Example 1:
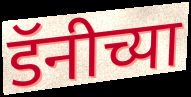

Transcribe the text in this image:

डॅनीच्या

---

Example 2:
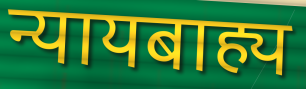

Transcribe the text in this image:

न्यायबाह्य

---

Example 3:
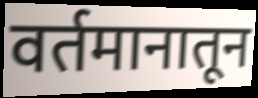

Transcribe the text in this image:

वर्तमानातून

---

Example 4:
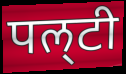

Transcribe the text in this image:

पल्टी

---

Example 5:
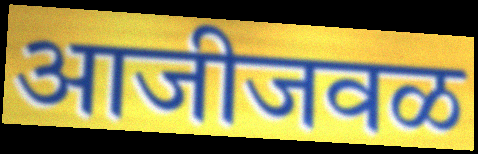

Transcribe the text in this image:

आजीजवळ